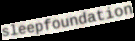
sleepfoundation